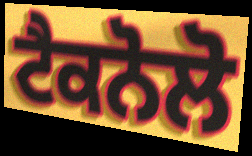
ਟੈਕਨੋਲੋ